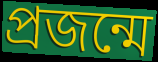
প্রজন্মে